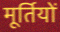
मूर्तियों